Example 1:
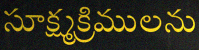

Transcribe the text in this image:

సూక్ష్మక్రిములను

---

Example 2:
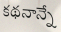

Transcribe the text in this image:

కథనాన్నే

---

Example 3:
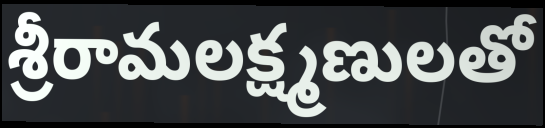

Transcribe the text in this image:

శ్రీరామలక్ష్మణులతో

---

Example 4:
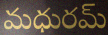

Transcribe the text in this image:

మధురమ్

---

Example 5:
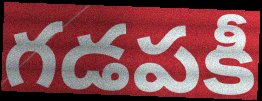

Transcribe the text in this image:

గడపకీ